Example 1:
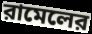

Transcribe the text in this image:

রামেলের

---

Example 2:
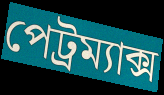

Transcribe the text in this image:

পেট্রম্যাক্স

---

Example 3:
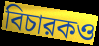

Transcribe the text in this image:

বিচারকও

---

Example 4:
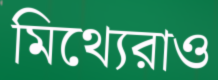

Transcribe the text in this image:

মিথ্যেরাও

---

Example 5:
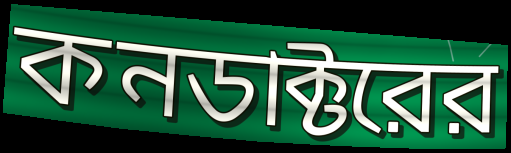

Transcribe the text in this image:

কনডাক্টরের